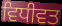
ਵਿਧੀਵਤ